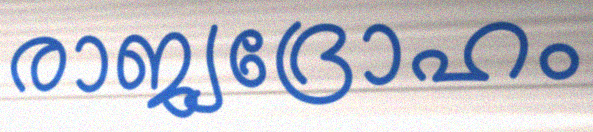
രാജ്യദ്രോഹം